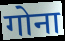
गोना